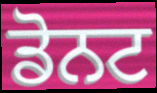
ਡੋਨਟ